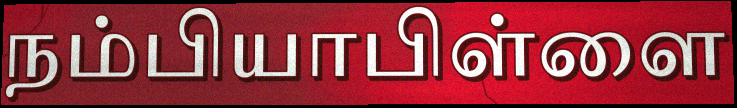
நம்பியாபிள்ளை